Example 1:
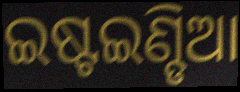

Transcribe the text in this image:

ଇଷ୍ଟଇଣ୍ଡିଆ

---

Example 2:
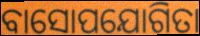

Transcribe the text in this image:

ବାସୋପଯୋଗିତା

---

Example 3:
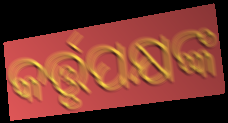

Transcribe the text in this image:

କର୍ତ୍ତୃପକ୍ଷଙ୍କ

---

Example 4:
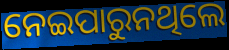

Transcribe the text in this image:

ନେଇପାରୁନଥିଲେ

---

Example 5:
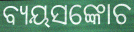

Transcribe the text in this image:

ବ୍ୟୟସଙ୍କୋଚ